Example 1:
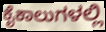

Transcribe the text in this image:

ಕೈಕಾಲುಗಳಲ್ಲಿ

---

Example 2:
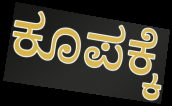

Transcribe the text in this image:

ಕೂಪಕ್ಕೆ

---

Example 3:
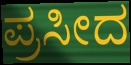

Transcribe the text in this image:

ಪ್ರಸೀದ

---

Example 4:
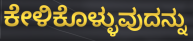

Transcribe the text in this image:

ಕೇಳಿಕೊಳ್ಳುವುದನ್ನು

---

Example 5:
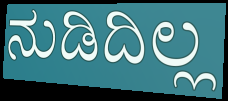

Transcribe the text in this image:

ನುಡಿದಿಲ್ಲ